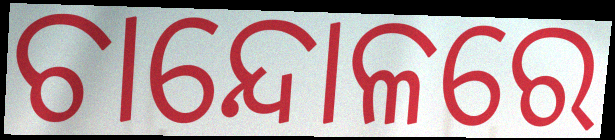
ଚାନ୍ଦୋଳରେ